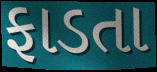
ફાડતા